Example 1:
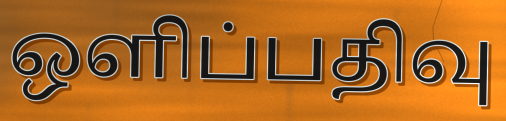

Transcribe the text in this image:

ஒளிப்பதிவு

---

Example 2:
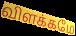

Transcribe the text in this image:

விளக்கமே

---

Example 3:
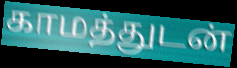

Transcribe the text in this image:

காமத்துடன்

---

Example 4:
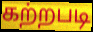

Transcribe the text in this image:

கற்றபடி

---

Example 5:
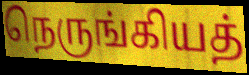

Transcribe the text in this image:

நெருங்கியத்